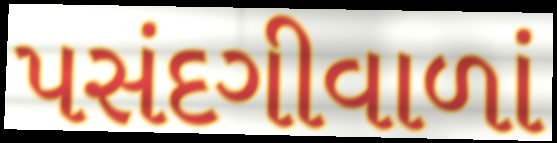
પસંદગીવાળાં